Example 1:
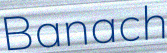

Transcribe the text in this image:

Banach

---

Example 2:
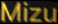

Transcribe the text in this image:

Mizu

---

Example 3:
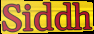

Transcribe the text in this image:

Siddh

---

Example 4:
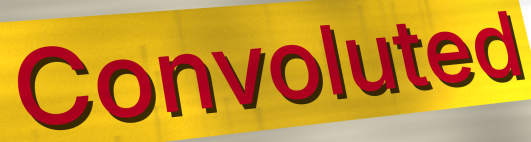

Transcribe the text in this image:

Convoluted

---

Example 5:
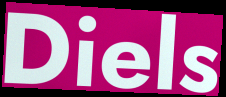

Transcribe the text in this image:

Diels